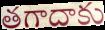
తగాదాకు